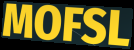
MOFSL